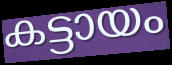
കട്ടായം